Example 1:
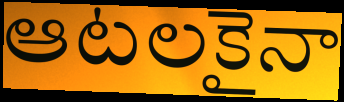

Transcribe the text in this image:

ఆటలకైనా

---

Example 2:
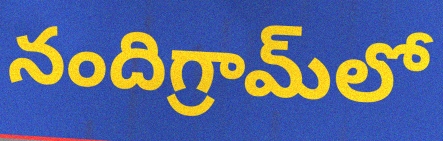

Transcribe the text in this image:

నందిగ్రామ్‌లో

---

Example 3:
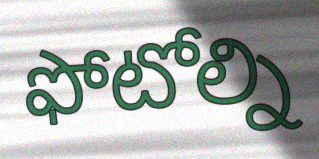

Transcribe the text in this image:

ఫోటోల్ని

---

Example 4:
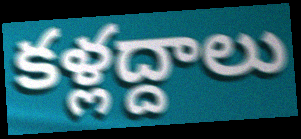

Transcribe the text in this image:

కళ్లద్దాలు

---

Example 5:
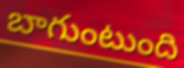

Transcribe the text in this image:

బాగుంటుంది